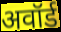
अवॉर्ड